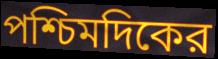
পশ্চিমদিকের